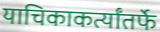
याचिकाकर्त्यांतर्फे